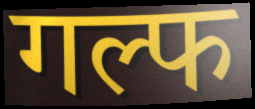
गल्फ